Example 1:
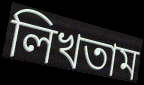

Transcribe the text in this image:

লিখতাম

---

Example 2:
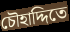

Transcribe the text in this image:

চৌহাদ্দিতে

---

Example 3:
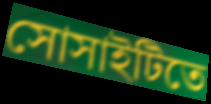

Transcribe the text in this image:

সোসাইটিতে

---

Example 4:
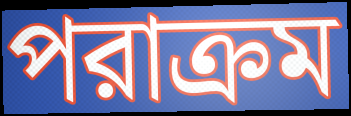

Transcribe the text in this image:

পরাক্রম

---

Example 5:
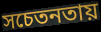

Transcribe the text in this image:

সচেতনতায়